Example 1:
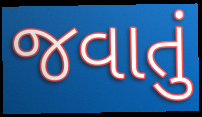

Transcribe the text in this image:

જવાતું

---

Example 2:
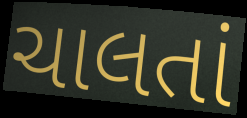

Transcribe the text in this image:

ચાલતાં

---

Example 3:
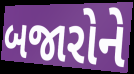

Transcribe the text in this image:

બજારોને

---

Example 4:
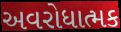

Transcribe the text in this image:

અવરોધાત્મક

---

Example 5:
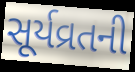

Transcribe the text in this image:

સૂર્યવ્રતની